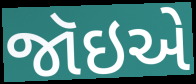
જૉઇએ